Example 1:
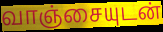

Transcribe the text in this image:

வாஞ்சையுடன்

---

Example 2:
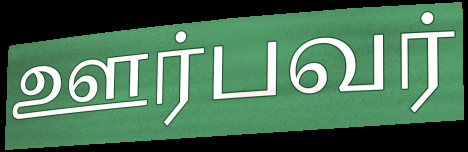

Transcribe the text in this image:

ஊர்பவர்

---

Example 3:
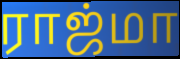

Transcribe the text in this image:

ராஜ்மா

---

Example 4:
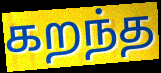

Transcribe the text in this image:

கறந்த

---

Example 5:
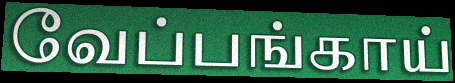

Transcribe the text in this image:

வேப்பங்காய்